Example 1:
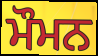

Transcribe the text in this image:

ਮੌਮਨ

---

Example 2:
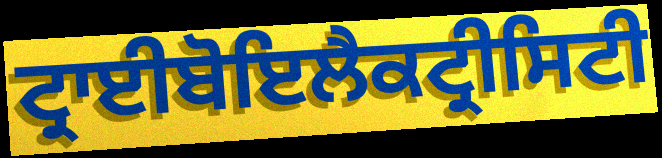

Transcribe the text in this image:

ਟ੍ਰਾਈਬੋਇਲੈਕਟ੍ਰੀਸਿਟੀ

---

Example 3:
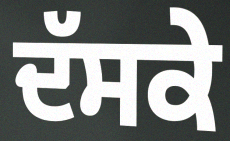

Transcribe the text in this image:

ਦੱਸਕੇ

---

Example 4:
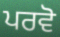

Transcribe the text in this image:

ਪਰਵੋ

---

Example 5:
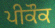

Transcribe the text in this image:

ਪੀਕੌਕ